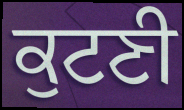
ਕੁਟਣੀ